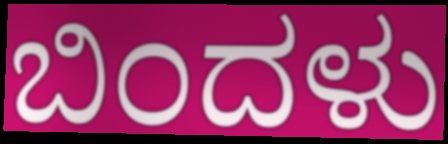
ಬಿಂದಳು